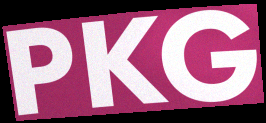
PKG